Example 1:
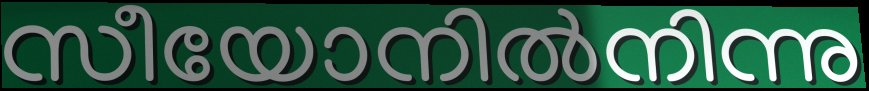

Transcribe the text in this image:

സീയോനിൽനിന്നു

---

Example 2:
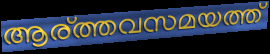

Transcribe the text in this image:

ആര്ത്തവസമയത്ത്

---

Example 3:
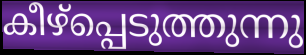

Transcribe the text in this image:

കീഴ്പ്പെടുത്തുന്നു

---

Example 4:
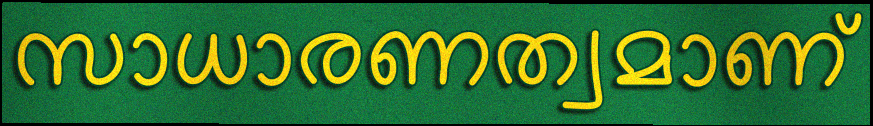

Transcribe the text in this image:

സാധാരണത്വമാണ്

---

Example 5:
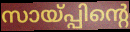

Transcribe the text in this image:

സായ്പ്പിന്റെ